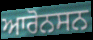
ਆਰੋਨਸਨ